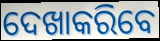
ଦେଖାକରିବେ